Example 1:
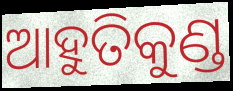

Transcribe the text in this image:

ଆହୁତିକୁଣ୍ଡ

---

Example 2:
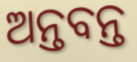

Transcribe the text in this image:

ଅନ୍ତବନ୍ତ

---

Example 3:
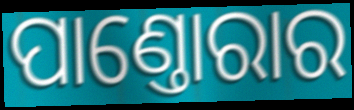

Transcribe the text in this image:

ପାଣ୍ତୋରାର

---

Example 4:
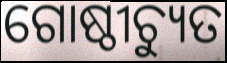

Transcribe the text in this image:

ଗୋଷ୍ଠୀଚ୍ୟୁତ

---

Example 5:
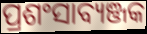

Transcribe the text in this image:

ପ୍ରଶଂସାବ୍ୟଞ୍ଜକ